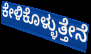
ಕೇಳಿಕೊಳ್ಳುತ್ತೇನೆ